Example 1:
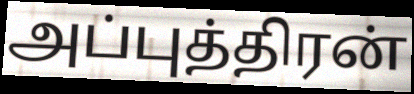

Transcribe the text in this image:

அப்புத்திரன்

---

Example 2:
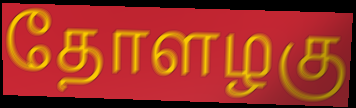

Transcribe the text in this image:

தோளழகு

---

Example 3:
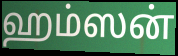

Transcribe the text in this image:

ஹம்ஸன்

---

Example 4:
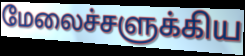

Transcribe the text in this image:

மேலைச்சளுக்கிய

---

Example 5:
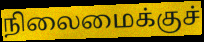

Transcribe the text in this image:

நிலைமைக்குச்